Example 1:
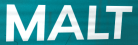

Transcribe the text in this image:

MALT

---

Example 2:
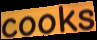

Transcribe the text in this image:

cooks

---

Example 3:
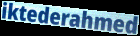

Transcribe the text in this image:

iktederahmed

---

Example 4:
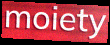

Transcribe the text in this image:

moiety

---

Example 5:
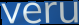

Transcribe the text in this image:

veru